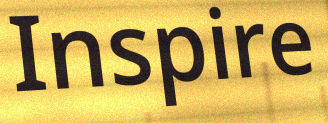
Inspire